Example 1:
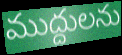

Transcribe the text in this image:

ముద్దులను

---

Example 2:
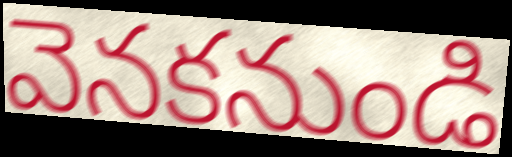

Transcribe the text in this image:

వెనకనుండి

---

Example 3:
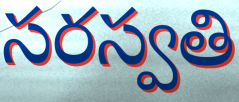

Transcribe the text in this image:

సరస్వతి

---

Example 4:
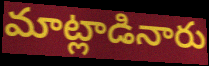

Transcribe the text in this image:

మాట్లాడినారు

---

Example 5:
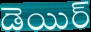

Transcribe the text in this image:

డెయిర్